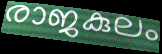
രാജകുലം